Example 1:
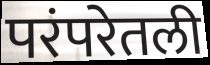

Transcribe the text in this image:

परंपरेतली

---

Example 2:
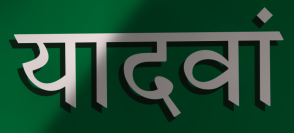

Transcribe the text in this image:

यादवां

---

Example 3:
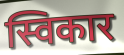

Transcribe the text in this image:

स्विकार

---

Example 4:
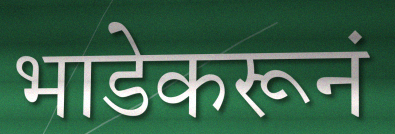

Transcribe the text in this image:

भाडेकरूनं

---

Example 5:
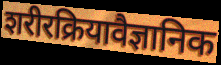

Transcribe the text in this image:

शरीरक्रियावैज्ञानिक